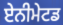
ਏਨੀਮੇਟਡ